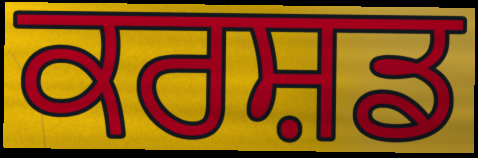
ਕਰਸ਼ਡ